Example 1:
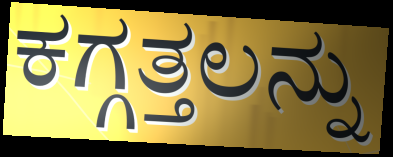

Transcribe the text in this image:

ಕಗ್ಗತ್ತಲನ್ನು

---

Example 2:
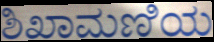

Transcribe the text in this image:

ಶಿಖಾಮಣಿಯ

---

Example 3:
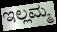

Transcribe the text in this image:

ಇಲ್ಲಮ್ಮ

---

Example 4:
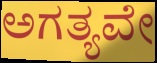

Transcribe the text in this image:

ಅಗತ್ಯವೇ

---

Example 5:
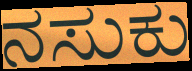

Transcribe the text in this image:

ನಸುಕು